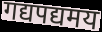
गद्यपद्यमय